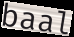
baal